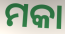
ମକା